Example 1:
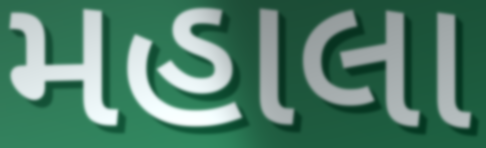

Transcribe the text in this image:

મહાલા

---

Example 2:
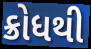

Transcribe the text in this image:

ક્રોધથી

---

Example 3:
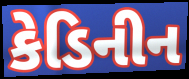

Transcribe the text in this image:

કેડિનીન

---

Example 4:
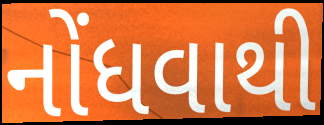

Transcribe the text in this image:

નોંધવાથી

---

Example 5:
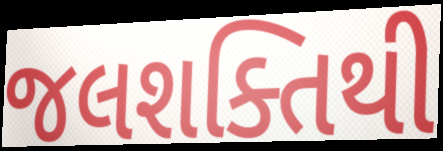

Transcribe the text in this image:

જલશક્તિથી